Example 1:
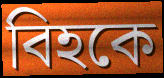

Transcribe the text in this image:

বিহকে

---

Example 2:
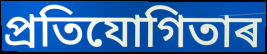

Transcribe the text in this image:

প্ৰতিযোগিতাৰ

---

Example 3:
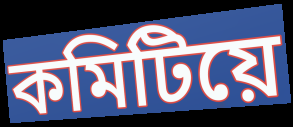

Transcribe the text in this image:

কমিটিয়ে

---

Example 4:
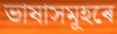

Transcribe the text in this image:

ভাষাসমূহৰে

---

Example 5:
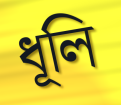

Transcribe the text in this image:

ধূলি